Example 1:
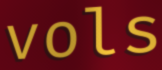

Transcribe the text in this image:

vols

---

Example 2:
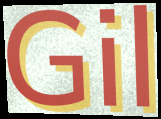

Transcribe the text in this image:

Gil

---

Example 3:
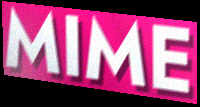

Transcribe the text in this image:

MIME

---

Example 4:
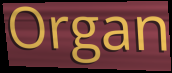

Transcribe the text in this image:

Organ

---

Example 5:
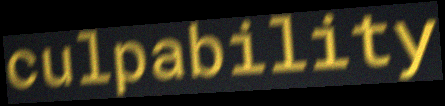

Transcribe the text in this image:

culpability